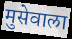
मुसेवाला